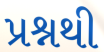
પ્રશ્નથી